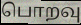
பொறவு